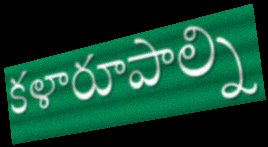
కళారూపాల్ని